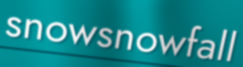
snowsnowfall